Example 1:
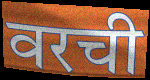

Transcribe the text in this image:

वरची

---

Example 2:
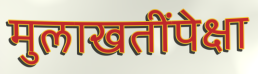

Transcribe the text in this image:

मुलाखतींपेक्षा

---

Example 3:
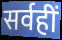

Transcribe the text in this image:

सर्वहीं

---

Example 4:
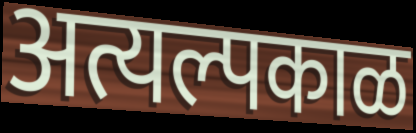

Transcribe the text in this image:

अत्यल्पकाळ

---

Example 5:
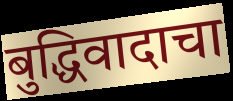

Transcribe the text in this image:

बुद्धिवादाचा